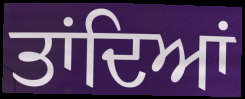
ਤਾਂਦਿਆਂ